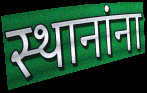
स्थानांना